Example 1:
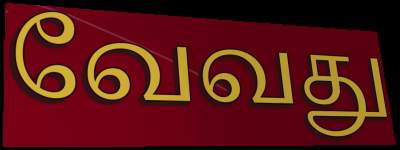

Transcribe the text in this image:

வேவது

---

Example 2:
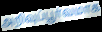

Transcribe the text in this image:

அறிவுப்பூர்வமாக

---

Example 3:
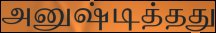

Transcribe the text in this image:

அனுஷ்டித்தது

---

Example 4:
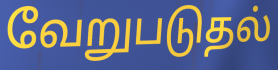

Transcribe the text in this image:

வேறுபடுதல்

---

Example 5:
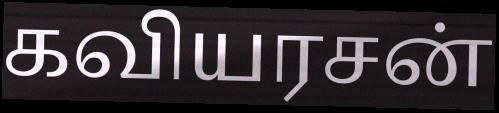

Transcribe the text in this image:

கவியரசன்